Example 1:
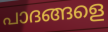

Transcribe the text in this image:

പാദങ്ങളെ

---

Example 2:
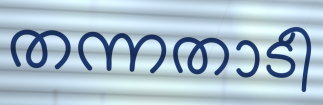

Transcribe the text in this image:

തന്നതാടീ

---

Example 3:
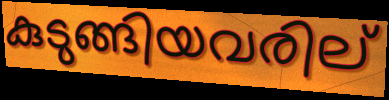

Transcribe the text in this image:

കുടുങ്ങിയവരില്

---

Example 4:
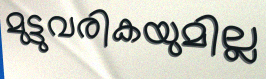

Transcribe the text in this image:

മുട്ടുവരികയുമില്ല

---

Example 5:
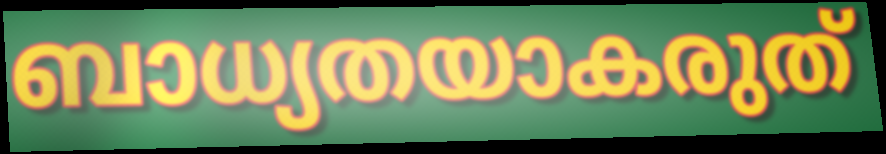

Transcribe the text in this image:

ബാധ്യതയാകരുത്